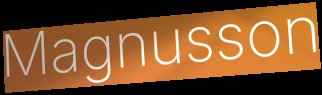
Magnusson